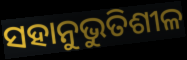
ସହାନୁଭୁତିଶୀଳ